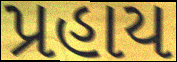
પ્રહાય